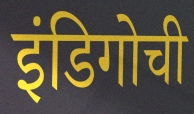
इंडिगोची